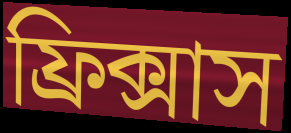
ফ্রিক্সাস